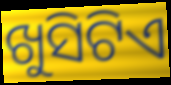
ଖୁସିଟିଏ